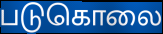
படுகொலை